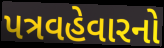
પત્રવહેવારનો